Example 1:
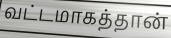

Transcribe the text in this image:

வட்டமாகத்தான்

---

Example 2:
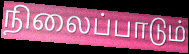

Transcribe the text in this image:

நிலைப்பாடும்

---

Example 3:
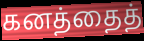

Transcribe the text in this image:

கனத்தைத்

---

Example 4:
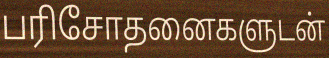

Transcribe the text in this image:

பரிசோதனைகளுடன்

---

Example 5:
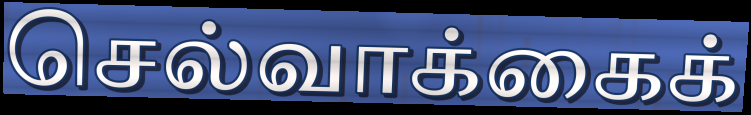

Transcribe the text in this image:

செல்வாக்கைக்